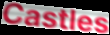
Castles